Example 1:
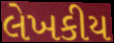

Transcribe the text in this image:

લેખકીય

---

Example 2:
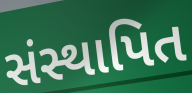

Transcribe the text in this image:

સંસ્થાપિત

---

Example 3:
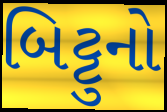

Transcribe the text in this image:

બિટ્ટુનો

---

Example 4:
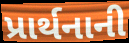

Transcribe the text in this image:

પ્રાર્થનાની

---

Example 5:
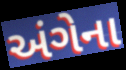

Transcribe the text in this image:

અંગેના